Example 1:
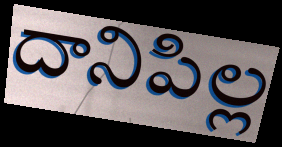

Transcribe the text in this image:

దానిపిల్ల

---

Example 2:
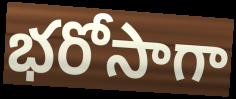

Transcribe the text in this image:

భరోసాగా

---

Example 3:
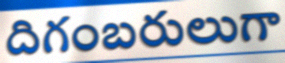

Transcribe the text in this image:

దిగంబరులుగా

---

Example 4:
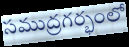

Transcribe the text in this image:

సముద్రగర్భంలో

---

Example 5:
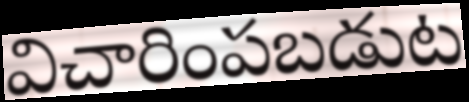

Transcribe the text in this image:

విచారింపబడుట